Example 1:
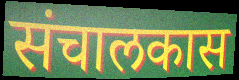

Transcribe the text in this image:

संचालकास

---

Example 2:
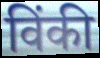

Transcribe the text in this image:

विंकी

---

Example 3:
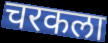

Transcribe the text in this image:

चरकला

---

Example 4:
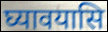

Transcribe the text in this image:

घ्यावयासि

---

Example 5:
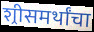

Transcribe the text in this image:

श्रीसमर्थांचा